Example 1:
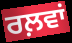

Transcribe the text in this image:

ਰਲ਼ਵਾਂ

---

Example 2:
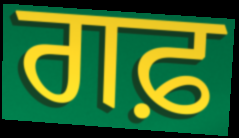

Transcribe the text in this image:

ਗਫ਼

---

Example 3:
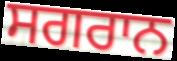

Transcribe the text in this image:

ਸਗਰਾਨ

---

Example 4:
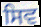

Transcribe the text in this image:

ਸਿਵ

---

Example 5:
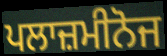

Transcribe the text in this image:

ਪਲਾਜ਼ਮੀਨੋਜ